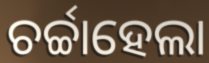
ଚର୍ଚ୍ଚାହେଲା